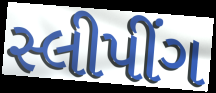
સ્લીપીંગ